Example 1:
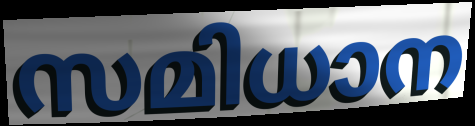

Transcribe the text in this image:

സമിധാന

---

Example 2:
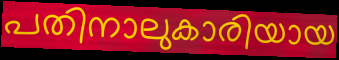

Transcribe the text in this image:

പതിനാലുകാരിയായ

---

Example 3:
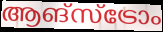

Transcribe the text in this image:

ആങ്സ്ട്രോം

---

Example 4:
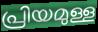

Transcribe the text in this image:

പ്രിയമുള്ള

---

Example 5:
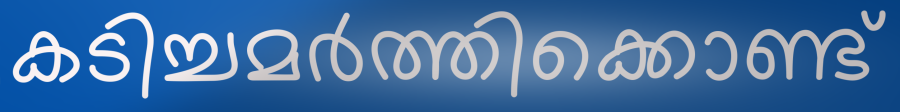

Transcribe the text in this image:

കടിച്ചമർത്തിക്കൊണ്ട്